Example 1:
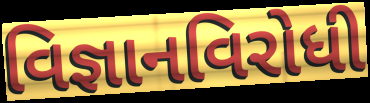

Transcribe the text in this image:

વિજ્ઞાનવિરોધી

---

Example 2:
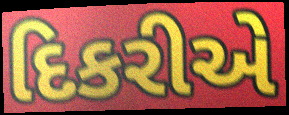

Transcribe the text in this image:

દિકરીએ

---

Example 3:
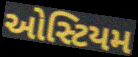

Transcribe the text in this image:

ઓસ્ટિયમ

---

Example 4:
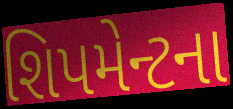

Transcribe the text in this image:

શિપમેન્ટના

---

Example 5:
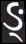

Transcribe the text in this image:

ઙ્